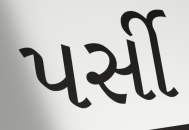
પર્સી